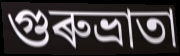
গুৰুভ্ৰাতা